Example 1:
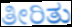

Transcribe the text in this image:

ತೀರಿತು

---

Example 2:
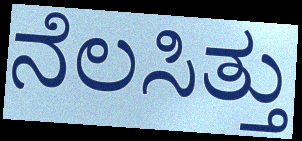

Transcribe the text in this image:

ನೆಲಸಿತ್ತು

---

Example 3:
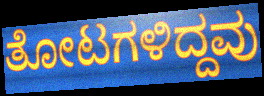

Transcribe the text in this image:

ತೋಟಗಳಿದ್ದವು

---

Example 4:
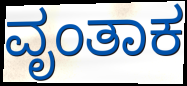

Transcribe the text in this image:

ವೃಂತಾಕ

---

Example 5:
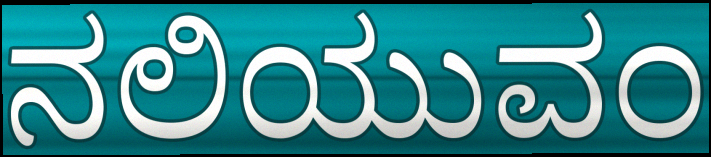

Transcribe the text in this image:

ನಲಿಯುವಂ